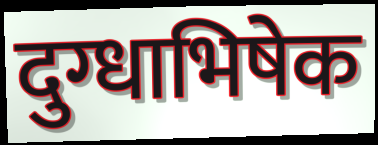
दुग्धाभिषेक